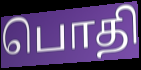
பொதி